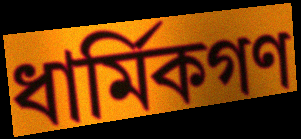
ধার্মিকগণ